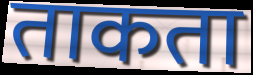
ताकता